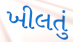
ખીલતું